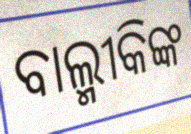
ବାଲ୍ମୀକିଙ୍କ